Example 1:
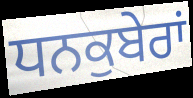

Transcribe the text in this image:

ਧਨਕੁਬੇਰਾਂ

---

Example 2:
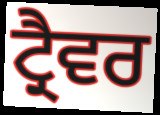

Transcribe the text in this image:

ਟ੍ਰੈਵਰ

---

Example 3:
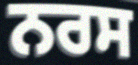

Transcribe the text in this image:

ਨਰਸ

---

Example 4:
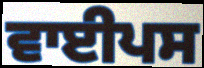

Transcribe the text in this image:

ਵਾਈਪਸ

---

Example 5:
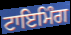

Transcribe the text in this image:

ਟਾਇਮਿੰਗ